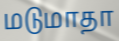
மடுமாதா